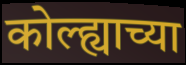
कोल्ह्याच्या